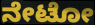
ನೇಟೋ